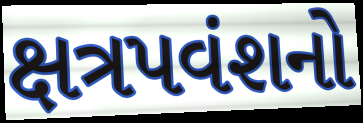
ક્ષત્રપવંશનો